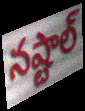
నష్టాల్